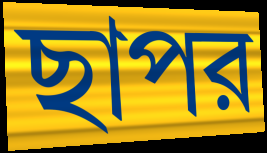
ছাপর